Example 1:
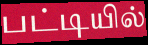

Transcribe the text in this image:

பட்டியில்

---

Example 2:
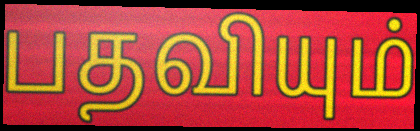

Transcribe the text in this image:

பதவியும்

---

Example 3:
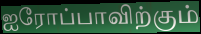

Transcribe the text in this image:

ஐரோப்பாவிற்கும்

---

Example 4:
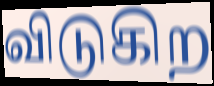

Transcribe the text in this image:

விடுகிற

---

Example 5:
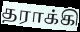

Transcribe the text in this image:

தராக்கி